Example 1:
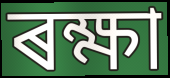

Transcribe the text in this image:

ৰক্ষা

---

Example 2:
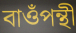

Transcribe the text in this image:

বাওঁপন্থী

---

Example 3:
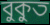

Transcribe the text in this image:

বুকুত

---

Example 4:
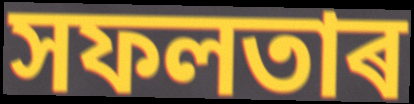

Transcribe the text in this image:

সফলতাৰ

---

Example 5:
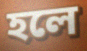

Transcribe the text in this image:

হলে